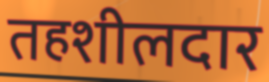
तहशीलदार